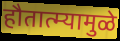
हौतात्म्यामुळे